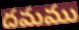
దమము